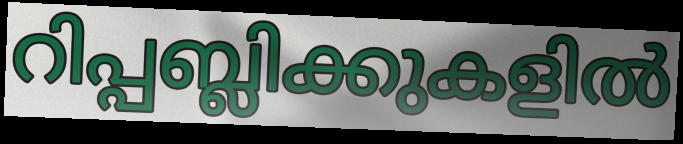
റിപ്പബ്ലിക്കുകളിൽ